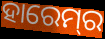
ହାରେମ୍‍ର